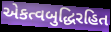
એકત્વબુદ્ધિરહિત